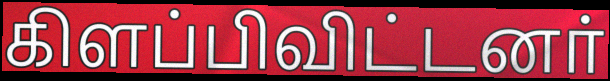
கிளப்பிவிட்டனர்